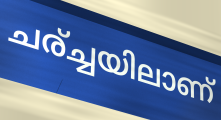
ചര്ച്ചയിലാണ്